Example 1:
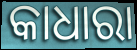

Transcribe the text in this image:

କାଧାରା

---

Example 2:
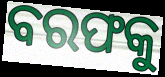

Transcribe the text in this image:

ବରଫକୁ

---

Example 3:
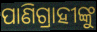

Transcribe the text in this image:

ପାଣିଗ୍ରାହୀଙ୍କୁ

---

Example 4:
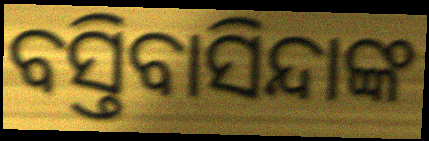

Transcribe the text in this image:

ବସ୍ତିବାସିନ୍ଦାଙ୍କ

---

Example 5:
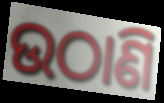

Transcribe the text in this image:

ଉଠାଣି